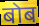
बोब